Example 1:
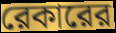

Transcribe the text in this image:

রেকারের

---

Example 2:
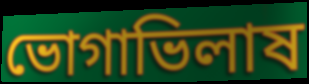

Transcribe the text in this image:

ভোগাভিলাষ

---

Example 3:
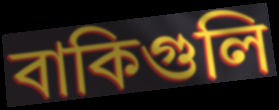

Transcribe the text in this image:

বাকিগুলি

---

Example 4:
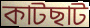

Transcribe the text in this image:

কাটছাট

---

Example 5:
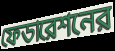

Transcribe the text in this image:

ফেডারেশনের